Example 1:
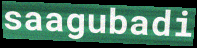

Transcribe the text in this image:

saagubadi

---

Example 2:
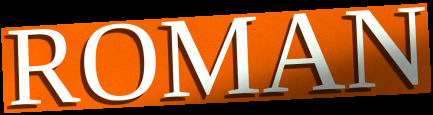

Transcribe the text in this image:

ROMAN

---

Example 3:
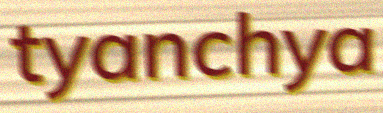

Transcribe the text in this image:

tyanchya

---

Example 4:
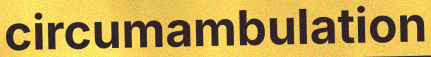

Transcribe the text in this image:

circumambulation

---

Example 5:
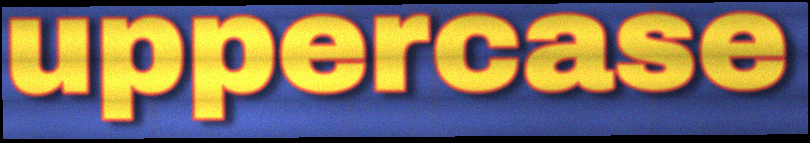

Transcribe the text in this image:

uppercase